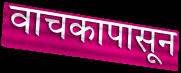
वाचकापासून